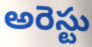
అరెస్టు